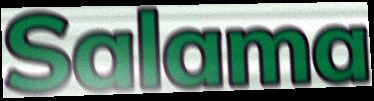
Salama